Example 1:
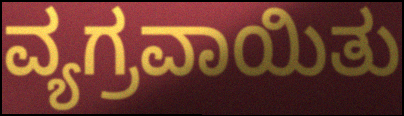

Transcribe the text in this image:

ವ್ಯಗ್ರವಾಯಿತು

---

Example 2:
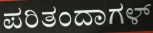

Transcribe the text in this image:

ಪರಿತಂದಾಗಳ್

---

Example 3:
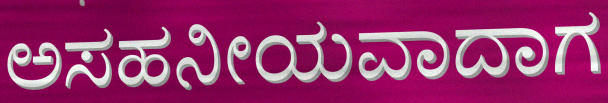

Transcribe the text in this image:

ಅಸಹನೀಯವಾದಾಗ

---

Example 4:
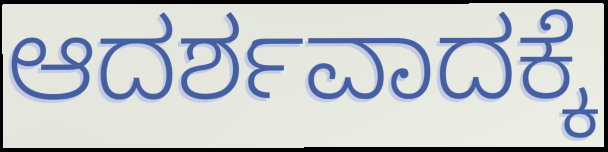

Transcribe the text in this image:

ಆದರ್ಶವಾದಕ್ಕೆ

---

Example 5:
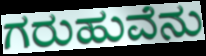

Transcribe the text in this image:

ಗರುಹುವೆನು